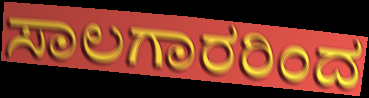
ಸಾಲಗಾರರಿಂದ